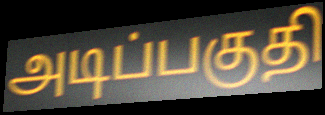
அடிப்பகுதி